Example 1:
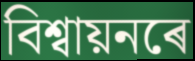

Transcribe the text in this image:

বিশ্বায়নৰে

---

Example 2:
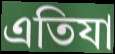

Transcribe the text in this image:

এতিযা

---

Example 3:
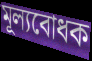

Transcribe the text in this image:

মূল্যবোধক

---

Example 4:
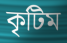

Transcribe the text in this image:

কৃটিম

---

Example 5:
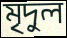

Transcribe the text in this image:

মৃদুল